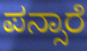
ಪನ್ಸಾರೆ